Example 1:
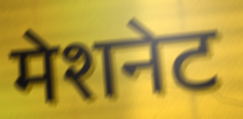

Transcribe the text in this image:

मेशनेट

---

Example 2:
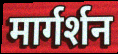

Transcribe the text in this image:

मार्गर्शन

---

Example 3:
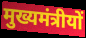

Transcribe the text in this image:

मुख्यमंत्रीयों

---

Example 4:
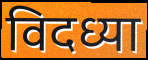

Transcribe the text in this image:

विदध्या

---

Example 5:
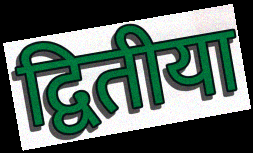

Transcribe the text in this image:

द्वितीया